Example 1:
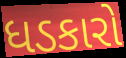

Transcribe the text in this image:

ધડકારો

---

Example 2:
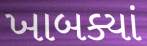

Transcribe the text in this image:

ખાબક્યાં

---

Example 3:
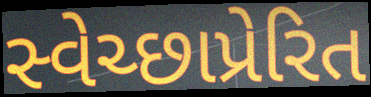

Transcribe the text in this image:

સ્વેચ્છાપ્રેરિત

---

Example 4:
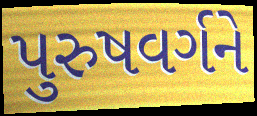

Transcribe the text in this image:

પુરુષવર્ગને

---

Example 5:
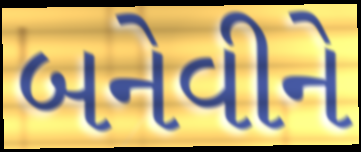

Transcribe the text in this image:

બનેવીને